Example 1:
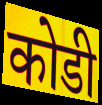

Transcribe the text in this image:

कोडी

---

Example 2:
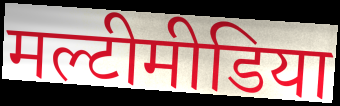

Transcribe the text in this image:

मल्टीमीडिया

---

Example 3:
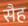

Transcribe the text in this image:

सैह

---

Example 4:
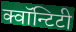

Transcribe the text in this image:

क्वॉन्टिटी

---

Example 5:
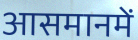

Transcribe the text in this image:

आसमानमें